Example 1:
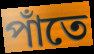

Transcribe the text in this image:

পাঁতে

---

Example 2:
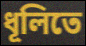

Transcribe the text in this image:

ধূলিতে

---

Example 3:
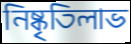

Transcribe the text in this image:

নিষ্কৃতিলাভ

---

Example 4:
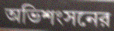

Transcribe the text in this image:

অভিশংসনের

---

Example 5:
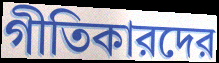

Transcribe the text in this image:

গীতিকারদের